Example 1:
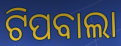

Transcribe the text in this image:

ଟିପବାଲା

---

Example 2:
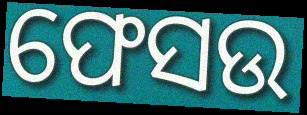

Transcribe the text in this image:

ଫେସଉ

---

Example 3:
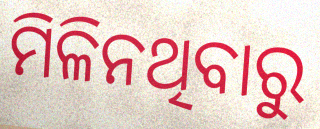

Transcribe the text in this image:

ମିଳିନଥିବାରୁ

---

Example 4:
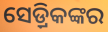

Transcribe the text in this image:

ସେଡ଼୍ରିକଙ୍କର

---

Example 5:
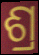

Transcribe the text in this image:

ଶ୍ର